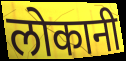
लोकानी